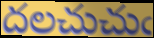
దలచుచుఁ